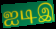
ஐடிஇ